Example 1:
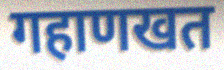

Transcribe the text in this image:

गहाणखत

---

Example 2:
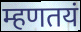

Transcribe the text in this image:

म्हणतयं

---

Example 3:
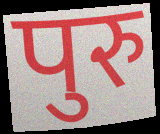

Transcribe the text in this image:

पुरु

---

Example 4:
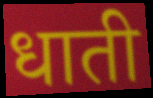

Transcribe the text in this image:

धाती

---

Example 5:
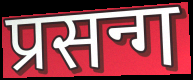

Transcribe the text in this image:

प्रसन्ग